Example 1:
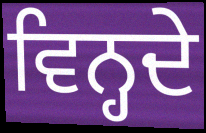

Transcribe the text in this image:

ਵਿਨ੍ਹਦੇ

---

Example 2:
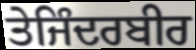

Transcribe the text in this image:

ਤੇਜਿੰਦਰਬੀਰ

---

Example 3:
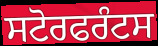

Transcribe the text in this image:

ਸਟੋਰਫਰੰਟਸ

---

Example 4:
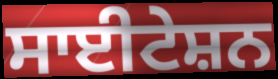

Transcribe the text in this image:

ਸਾਈਟੇਸ਼ਨ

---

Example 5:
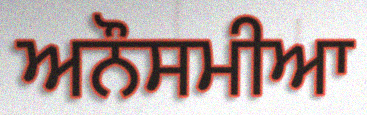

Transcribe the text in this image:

ਅਨੌਸਮੀਆ